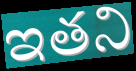
ఇతని